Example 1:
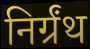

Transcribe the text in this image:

निर्ग्रंथ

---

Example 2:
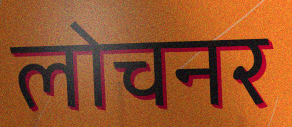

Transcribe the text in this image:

लोचनर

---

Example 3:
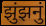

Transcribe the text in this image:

झुंझनुं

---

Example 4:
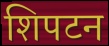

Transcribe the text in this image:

शिपटन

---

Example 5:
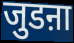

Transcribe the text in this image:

जुडऩा